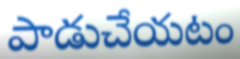
పాడుచేయటం